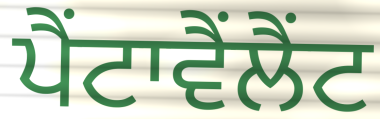
ਪੈਂਟਾਵੈਂਲੈਂਟ